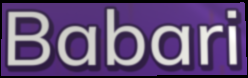
Babari